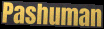
Pashuman